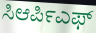
ಸಿಆರ್ಪಿಎಫ್